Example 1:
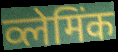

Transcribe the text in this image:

व्लेमिंक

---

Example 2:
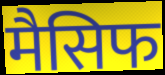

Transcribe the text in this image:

मैसिफ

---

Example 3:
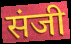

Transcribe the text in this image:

संजी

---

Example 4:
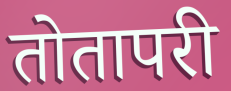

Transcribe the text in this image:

तोतापरी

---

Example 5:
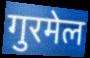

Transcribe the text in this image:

गुरमेल